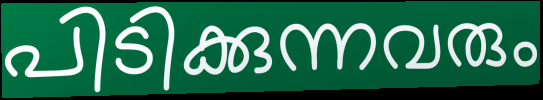
പിടിക്കുന്നവരും